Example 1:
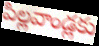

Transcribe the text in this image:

పిల్లవాండ్లకు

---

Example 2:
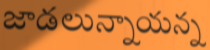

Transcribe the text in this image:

జాడలున్నాయన్న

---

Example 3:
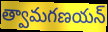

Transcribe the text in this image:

త్వామగణయన్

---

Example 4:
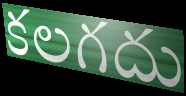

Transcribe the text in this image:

కలగదు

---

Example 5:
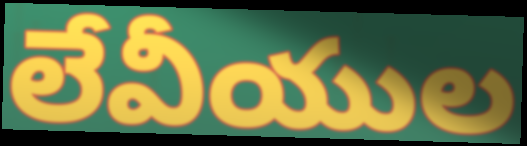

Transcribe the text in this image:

లేవీయుల